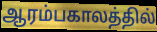
ஆரம்பகாலத்தில்